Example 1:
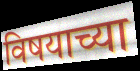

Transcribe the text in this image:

विषयाच्या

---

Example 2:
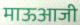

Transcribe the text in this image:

माऊआजी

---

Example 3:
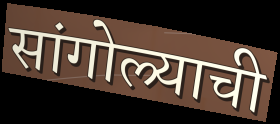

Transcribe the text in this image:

सांगोल्याची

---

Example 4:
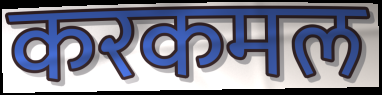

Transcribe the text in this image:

करकमल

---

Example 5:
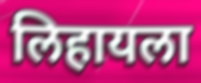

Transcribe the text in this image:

लिहायला